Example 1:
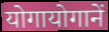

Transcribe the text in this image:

योगायोगानें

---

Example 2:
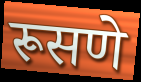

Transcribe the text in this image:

रूसणे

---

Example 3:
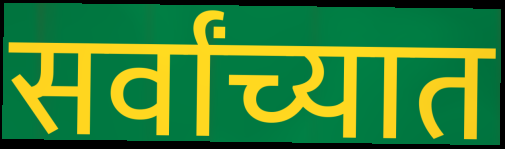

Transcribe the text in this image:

सर्वांच्यात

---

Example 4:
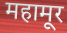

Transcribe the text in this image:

महामूर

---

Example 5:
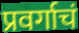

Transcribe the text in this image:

प्रवर्गाचं